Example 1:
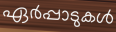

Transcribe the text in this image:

ഏർപ്പാടുകൾ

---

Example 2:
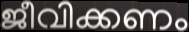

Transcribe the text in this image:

ജീവിക്കണം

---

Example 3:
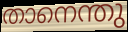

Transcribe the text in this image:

താനെന്തു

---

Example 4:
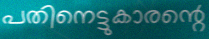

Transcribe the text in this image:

പതിനെട്ടുകാരന്റെ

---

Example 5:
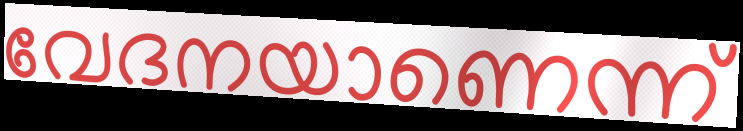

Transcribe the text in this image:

വേദനയാണെന്ന്